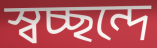
স্বচ্ছন্দে